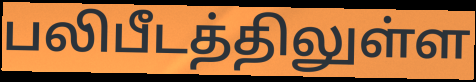
பலிபீடத்திலுள்ள